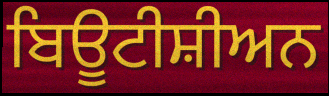
ਬਿਊਟੀਸ਼ੀਅਨ